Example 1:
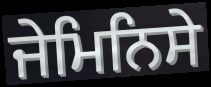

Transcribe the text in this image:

ਜੇਮਿਨਿਸੇ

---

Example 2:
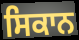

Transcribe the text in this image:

ਸਿਕਾਨ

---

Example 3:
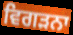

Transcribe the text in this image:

ਵਿਗੜਨਾ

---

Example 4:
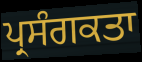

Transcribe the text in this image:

ਪ੍ਰਸੰਗਕਤਾ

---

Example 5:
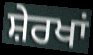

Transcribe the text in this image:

ਸ਼ੇਰਖਾਂ